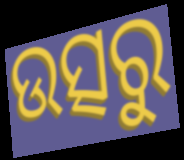
ଉତ୍ସରୁ